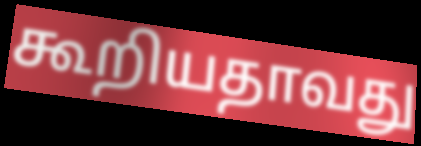
கூறியதாவது